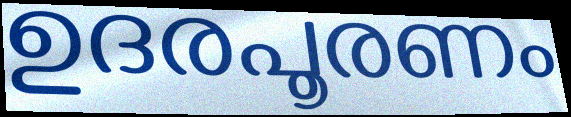
ഉദരപൂരണം